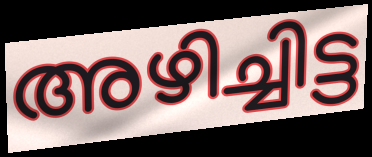
അഴിച്ചിട്ട